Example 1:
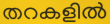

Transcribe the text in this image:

തറകളിൽ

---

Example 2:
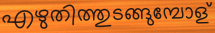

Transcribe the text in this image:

എഴുതിത്തുടങ്ങുമ്പോള്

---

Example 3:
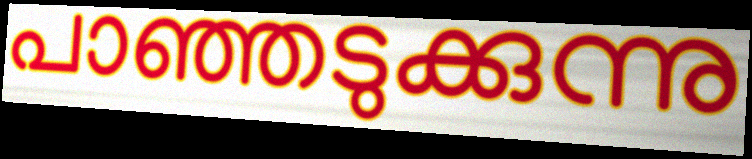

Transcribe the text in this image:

പാഞ്ഞടുക്കുന്നു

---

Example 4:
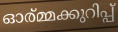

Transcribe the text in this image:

ഓര്മ്മക്കുറിപ്പ്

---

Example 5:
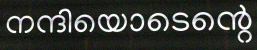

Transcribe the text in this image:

നന്ദിയൊടെന്റെ